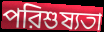
পরিশুষ্যতা